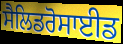
ਸੈਲਿਡਰੋਸਾਈਡ